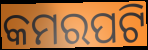
କମରପଟି